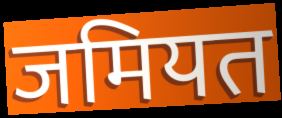
जमियत